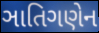
ઞાતિગણેન